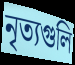
নৃত্যগুলি